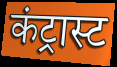
कंट्रास्ट